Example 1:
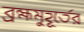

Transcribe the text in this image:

ব্রহ্মমুহূর্তের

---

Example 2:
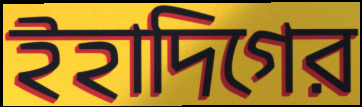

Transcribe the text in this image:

ইহাদিগের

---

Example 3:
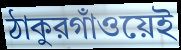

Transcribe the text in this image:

ঠাকুরগাঁওয়েই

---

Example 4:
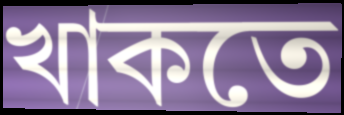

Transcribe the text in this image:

খাকতে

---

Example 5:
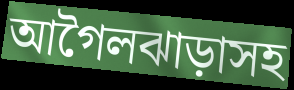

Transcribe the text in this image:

আগৈলঝাড়াসহ